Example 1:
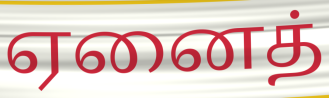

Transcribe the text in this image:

ஏனைத்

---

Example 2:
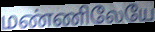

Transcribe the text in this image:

மண்ணிலேயே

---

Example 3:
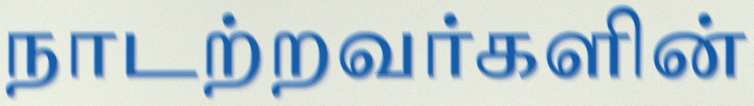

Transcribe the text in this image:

நாடற்றவர்களின்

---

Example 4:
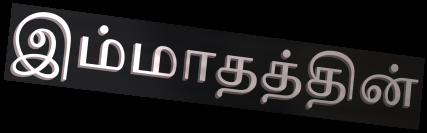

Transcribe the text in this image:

இம்மாதத்தின்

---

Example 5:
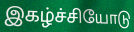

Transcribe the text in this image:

இகழ்ச்சியோடு